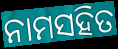
ନାମସହିତ